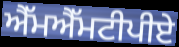
ਐੱਮਐੱਮਟੀਪੀਏ